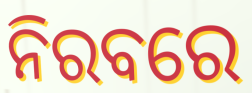
ନିରବରେ